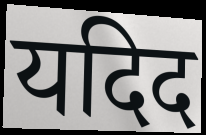
यदिद